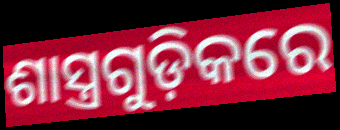
ଶାସ୍ତ୍ରଗୁଡ଼ିକରେ